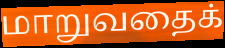
மாறுவதைக்